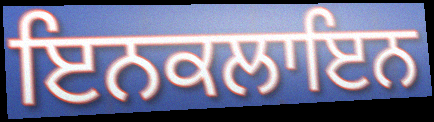
ਇਨਕਲਾਇਨ